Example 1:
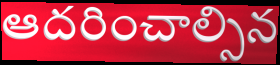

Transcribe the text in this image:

ఆదరించాల్సిన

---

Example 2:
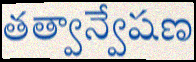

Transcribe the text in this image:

తత్వాన్వేషణ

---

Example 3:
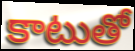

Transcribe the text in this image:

కాటుతో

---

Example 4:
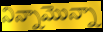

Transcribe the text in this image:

నిన్నామొన్నా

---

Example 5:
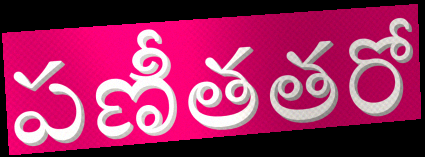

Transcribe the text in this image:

పణీతతరో